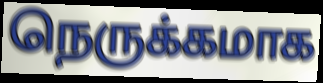
நெருக்கமாக